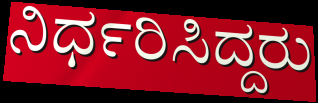
ನಿರ್ಧರಿಸಿದ್ದರು